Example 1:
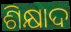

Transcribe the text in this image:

ଶିକ୍ଷାଦ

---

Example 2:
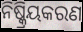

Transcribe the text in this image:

ନିଷ୍କ୍ରିୟକରଣ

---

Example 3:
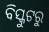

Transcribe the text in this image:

ବିସ୍କୁଟରୁ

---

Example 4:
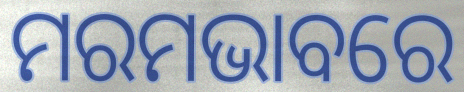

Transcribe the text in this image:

ମରମଭାବରେ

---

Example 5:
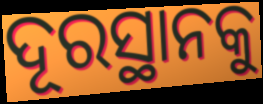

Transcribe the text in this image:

ଦୂରସ୍ଥାନକୁ